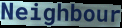
Neighbour